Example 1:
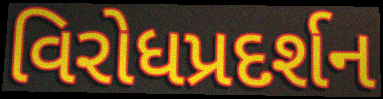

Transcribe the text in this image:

વિરોધપ્રદર્શન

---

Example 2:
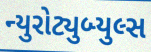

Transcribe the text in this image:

ન્યુરોટ્યુબ્યુલ્સ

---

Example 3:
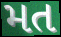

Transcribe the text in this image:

મત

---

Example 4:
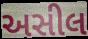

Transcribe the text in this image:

અસીલ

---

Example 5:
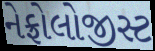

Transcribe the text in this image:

નેફ્રોલોજીસ્ટ